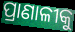
ପ୍ରାଣାଳୀକୁ